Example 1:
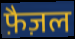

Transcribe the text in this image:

फ़ैज़ल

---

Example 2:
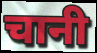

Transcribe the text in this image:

चानी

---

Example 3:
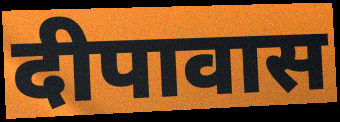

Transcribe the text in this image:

दीपावास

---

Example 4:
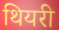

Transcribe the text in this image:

थियरी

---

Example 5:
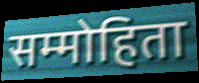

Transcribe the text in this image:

सम्मोहिता